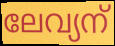
ലേവ്യന്